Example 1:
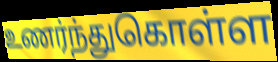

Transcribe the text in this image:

உணர்ந்துகொள்ள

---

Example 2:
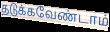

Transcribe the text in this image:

தடுக்கவேண்டாம்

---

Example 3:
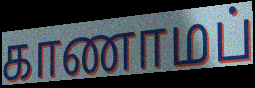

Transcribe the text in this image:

காணாமப்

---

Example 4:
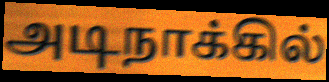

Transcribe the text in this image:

அடிநாக்கில்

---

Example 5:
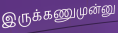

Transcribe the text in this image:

இருக்கணுமுன்னு